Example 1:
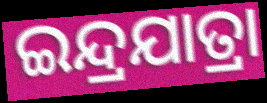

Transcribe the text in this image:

ଇନ୍ଦ୍ରଯାତ୍ରା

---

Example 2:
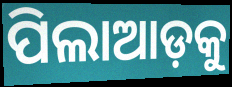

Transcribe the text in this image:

ପିଲାଆଡ଼କୁ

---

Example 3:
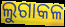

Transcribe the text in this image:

ଲୁଗାକଳ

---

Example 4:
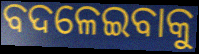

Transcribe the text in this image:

ବଦଳେଇବାକୁ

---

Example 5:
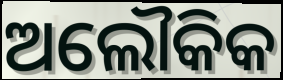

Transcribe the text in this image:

ଅଲୌକିକ